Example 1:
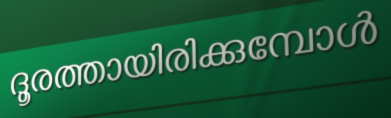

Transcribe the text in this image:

ദൂരത്തായിരിക്കുമ്പോൾ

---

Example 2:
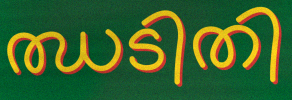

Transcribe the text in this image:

ഝടിതി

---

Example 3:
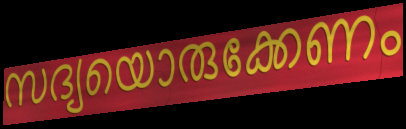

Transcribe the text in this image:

സദ്യയൊരുക്കേണം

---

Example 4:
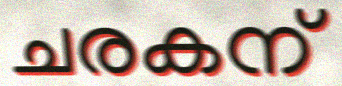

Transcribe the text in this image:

ചരകന്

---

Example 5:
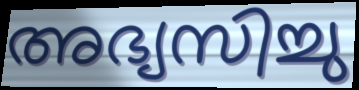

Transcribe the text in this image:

അഭ്യസിച്ചു